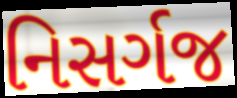
નિસર્ગજ